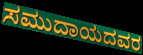
ಸಮುದಾಯದವರ